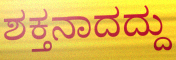
ಶಕ್ತನಾದದ್ದು